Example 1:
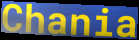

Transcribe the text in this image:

Chania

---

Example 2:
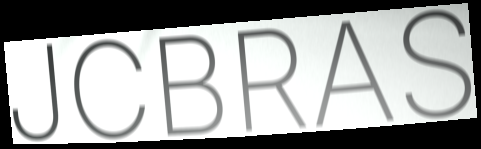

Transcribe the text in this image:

JCBRAS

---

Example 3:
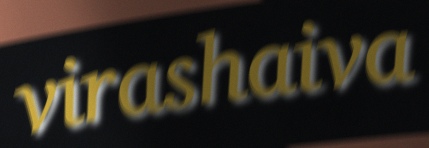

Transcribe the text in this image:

virashaiva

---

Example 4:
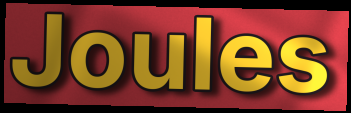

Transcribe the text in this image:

Joules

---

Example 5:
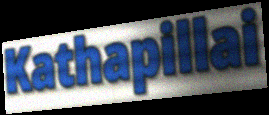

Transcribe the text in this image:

Kathapillai